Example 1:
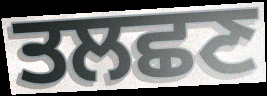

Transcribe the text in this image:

ਤਲਛਣ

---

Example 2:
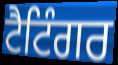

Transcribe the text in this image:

ਟੈਟਿੰਗਰ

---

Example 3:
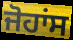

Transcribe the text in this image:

ਜੋਹਾਂਸ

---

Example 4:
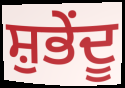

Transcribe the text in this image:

ਸ਼ੁਭੇਂਦੂ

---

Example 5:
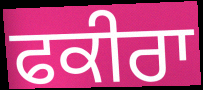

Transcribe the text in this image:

ਫਕੀਰਾ